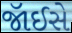
જૉઈસે